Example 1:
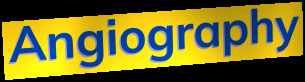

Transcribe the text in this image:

Angiography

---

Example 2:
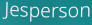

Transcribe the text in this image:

Jesperson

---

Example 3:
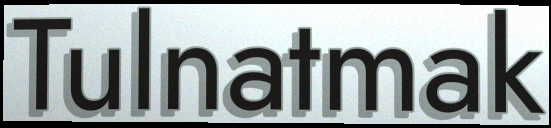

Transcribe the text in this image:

Tulnatmak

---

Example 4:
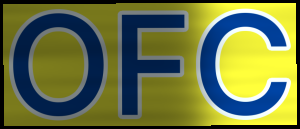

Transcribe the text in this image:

OFC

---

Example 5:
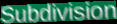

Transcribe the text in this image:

Subdivision